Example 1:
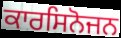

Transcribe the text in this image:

ਕਾਰਸਿਨੋਜਨ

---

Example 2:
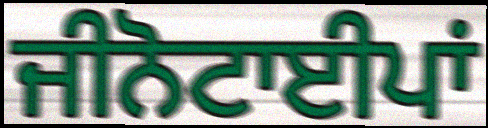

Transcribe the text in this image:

ਜੀਨੋਟਾਈਪਾਂ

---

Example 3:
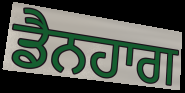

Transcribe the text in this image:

ਡੈਨਹਾਗ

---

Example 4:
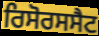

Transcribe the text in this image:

ਰਿਸੋਰਸਸੈਟ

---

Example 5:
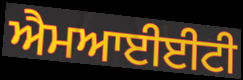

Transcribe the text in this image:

ਐਮਆਈਈਟੀ